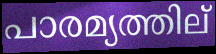
പാരമ്യത്തില്